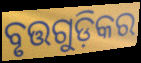
ବୃତ୍ତଗୁଡ଼ିକର